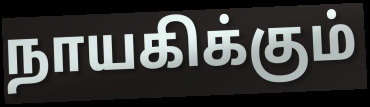
நாயகிக்கும்